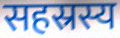
सहस्रस्य